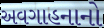
અવગાહનાનો